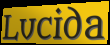
Lucida